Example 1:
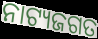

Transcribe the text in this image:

ନାଟ୍ୟଜଗତ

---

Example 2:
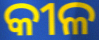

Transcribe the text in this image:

କୀଳ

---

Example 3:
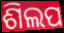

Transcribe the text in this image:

ଶିଲପ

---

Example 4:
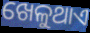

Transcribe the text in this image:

ଖେଳୁଥାଏ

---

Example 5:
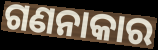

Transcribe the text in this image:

ଗଣନାକାର